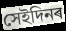
সেইদিনৰ